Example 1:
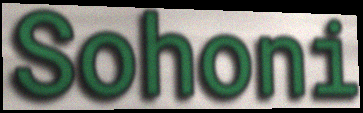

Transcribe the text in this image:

Sohoni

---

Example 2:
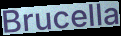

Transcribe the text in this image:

Brucella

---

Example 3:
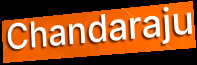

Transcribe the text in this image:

Chandaraju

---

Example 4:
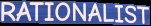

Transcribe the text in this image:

RATIONALIST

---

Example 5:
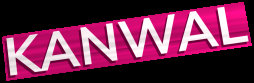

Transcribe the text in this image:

KANWAL